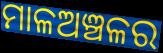
ମାଳଅଞ୍ଚଳର